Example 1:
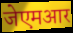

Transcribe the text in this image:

जेएमआर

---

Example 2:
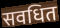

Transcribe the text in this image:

सवधित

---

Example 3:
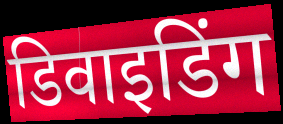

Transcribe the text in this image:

डिवाइडिंग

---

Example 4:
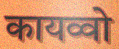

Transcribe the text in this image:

कायव्वो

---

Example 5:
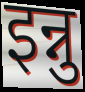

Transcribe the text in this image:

इन्नु